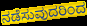
ನಡೆಸುವುದರಿಂದ